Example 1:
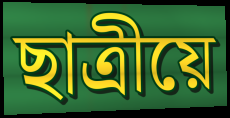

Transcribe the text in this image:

ছাত্ৰীয়ে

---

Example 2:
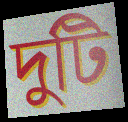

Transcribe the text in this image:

দুটি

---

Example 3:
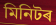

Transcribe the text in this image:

মিনিটৰ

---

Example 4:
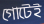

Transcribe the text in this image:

গোটেই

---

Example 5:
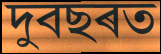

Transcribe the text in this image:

দুবছৰত